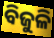
ବିଜୁଳି